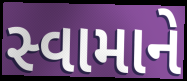
સ્વામાને